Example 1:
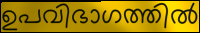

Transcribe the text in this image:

ഉപവിഭാഗത്തിൽ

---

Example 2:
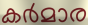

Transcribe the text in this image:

കർമാര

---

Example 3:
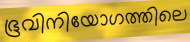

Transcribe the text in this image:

ഭൂവിനിയോഗത്തിലെ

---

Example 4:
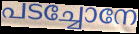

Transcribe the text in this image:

പടച്ചോനേ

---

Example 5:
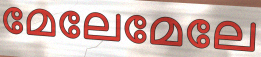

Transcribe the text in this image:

മേലേമേലേ